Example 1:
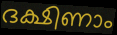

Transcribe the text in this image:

ദക്ഷിണാം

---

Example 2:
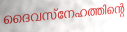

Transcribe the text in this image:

ദൈവസ്‌നേഹത്തിന്റെ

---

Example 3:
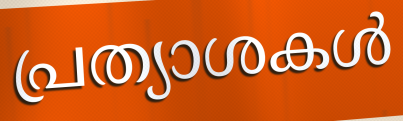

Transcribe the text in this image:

പ്രത്യാശകൾ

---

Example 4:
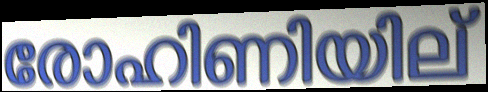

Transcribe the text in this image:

രോഹിണിയില്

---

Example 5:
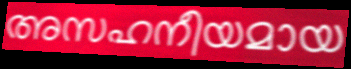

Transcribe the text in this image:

അസഹനീയമായ